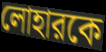
লোহারকে